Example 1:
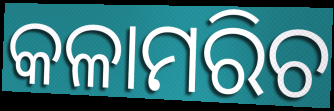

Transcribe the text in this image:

କଳାମରିଚ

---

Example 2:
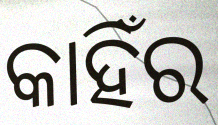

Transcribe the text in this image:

କାହିଁର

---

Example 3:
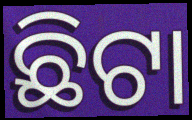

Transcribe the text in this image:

ଛିଟା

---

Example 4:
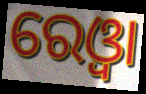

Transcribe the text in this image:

ରେଓ୍ବା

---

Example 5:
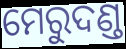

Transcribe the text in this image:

ମେରୁଦଣ୍ଡ